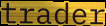
trader